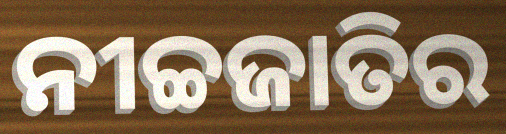
ନୀଚ୍ଚଜାତିର